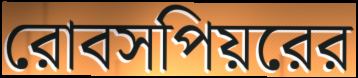
রোবসপিয়রের